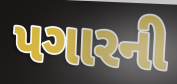
પગારની